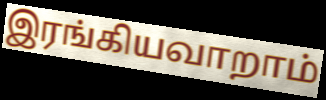
இரங்கியவாறாம்